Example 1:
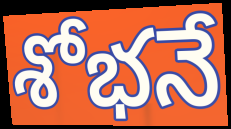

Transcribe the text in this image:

శోభనే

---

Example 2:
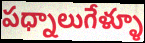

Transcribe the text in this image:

పధ్నాలుగేళ్ళూ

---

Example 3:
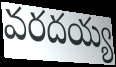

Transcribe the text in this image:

వరదయ్య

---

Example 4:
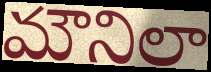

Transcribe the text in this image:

మౌనిలా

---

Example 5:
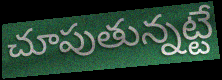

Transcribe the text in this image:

చూపుతున్నట్టే